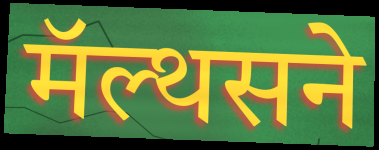
मॅल्थसने